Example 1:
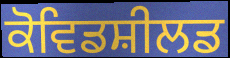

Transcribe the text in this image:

ਕੋਵਿਡਸ਼ੀਲਡ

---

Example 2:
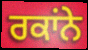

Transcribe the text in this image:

ਰਕਾਂਨੇ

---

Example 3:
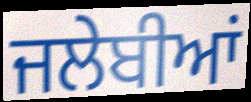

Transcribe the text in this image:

ਜਲੇਬੀਆਂ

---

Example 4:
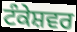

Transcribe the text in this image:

ਟੰਕੇਸ਼ਵਰ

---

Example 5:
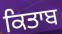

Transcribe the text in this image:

ਕਿਤਾਬ